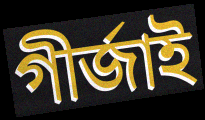
গীৰ্জাই